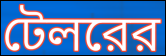
টেলরের